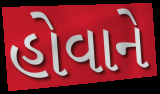
હોવાને